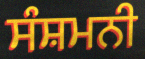
ਸੰਸ਼ਮਨੀ